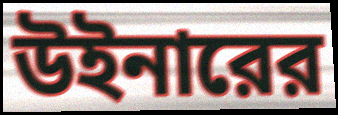
উইনারের